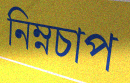
নিম্নচাপ